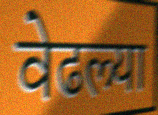
वेढल्या